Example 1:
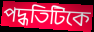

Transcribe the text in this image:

পদ্ধতিটিকে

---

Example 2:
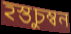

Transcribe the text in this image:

হস্তচুম্বন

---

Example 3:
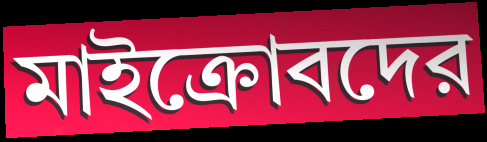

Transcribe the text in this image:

মাইক্রোবদের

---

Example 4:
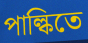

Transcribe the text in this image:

পাল্কিতে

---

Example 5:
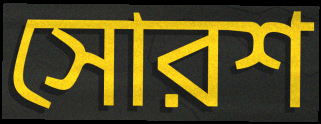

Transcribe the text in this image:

সোরশ